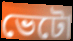
ভেটো